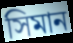
সিমান